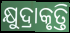
କ୍ଷୁଦ୍ରାକୃତ୍ତି